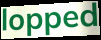
lopped